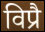
विप्रै